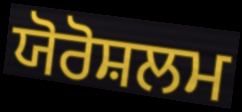
ਯੋਰੋਸ਼ਲਮ